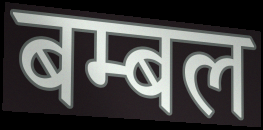
बम्बल